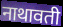
नाथावती